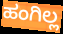
ಹಂಗಿಲ್ಲ